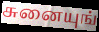
சுனையுங்